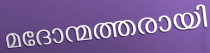
മദോന്മത്തരായി